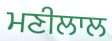
ਮਣੀਲਾਲ